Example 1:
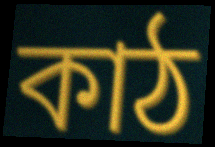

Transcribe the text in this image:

কাঠ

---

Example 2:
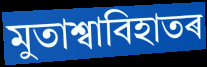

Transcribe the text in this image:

মুতাশ্বাবিহাতৰ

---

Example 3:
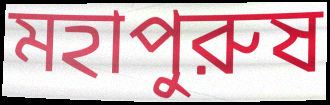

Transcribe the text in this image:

মহাপুৰুষ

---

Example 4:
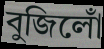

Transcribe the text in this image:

বুজিলোঁ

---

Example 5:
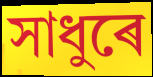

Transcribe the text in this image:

সাধুৰে